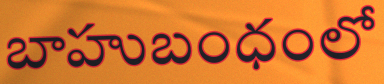
బాహుబంధంలో